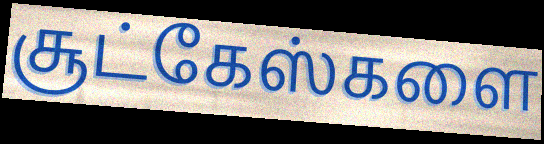
சூட்கேஸ்களை